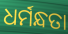
ଧର୍ମନ୍ଧତା